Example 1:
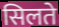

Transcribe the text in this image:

सिलते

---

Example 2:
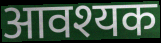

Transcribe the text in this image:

आवश्‍यक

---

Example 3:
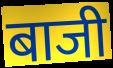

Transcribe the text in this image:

बाजी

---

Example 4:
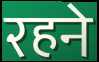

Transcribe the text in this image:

रहने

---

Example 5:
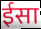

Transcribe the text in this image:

ईसा